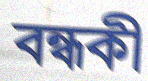
বন্ধকী